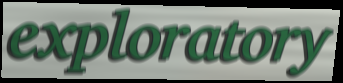
exploratory